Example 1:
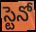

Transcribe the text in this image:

స్టెనో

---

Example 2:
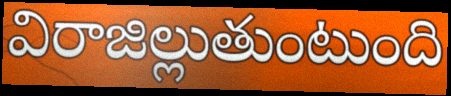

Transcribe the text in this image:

విరాజిల్లుతుంటుంది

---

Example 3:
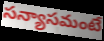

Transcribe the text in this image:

సన్యాసమంటే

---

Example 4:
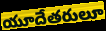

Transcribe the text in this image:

యూదేతరులూ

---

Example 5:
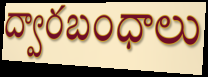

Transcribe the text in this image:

ద్వారబంధాలు